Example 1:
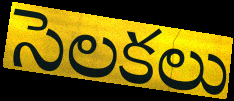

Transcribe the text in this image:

సెలకలు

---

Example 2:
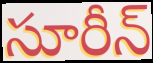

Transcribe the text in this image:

సూరీన్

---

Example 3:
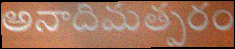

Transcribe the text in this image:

అనాదిమత్పరం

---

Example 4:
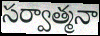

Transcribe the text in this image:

సర్వాత్మనా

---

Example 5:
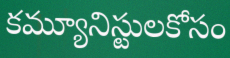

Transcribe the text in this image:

కమ్యూనిస్టులకోసం